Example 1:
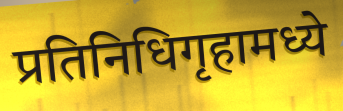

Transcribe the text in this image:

प्रतिनिधिगृहामध्ये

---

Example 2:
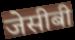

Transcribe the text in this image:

जेसीबी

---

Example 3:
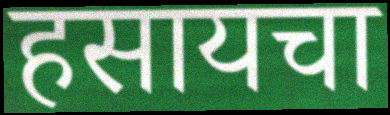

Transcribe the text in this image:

हसायचा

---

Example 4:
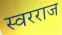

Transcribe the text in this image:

स्वरराज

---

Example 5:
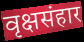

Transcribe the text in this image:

वृक्षसंहार